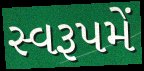
સ્વરૂપમેં